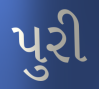
પુરી